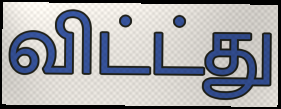
விட்ட்து